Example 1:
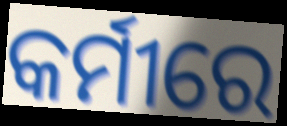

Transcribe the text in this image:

କର୍ମୀରେ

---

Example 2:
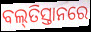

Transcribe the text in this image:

ବଲ୍‌ତିସ୍ତାନରେ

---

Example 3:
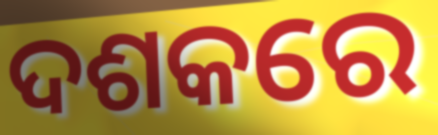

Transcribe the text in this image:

ଦଶକରେ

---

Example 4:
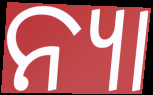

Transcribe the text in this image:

ନ୍ୟା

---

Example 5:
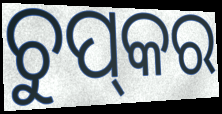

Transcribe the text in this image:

ଚୁପ୍‌କର